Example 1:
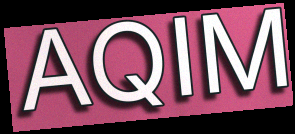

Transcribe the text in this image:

AQIM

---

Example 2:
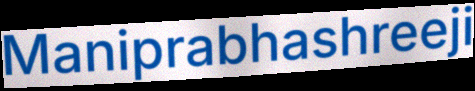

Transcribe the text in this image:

Maniprabhashreeji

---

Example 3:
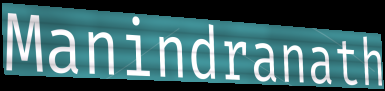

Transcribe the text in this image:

Manindranath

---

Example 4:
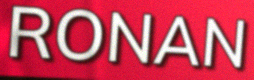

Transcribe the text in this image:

RONAN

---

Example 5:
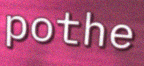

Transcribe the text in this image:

pothe